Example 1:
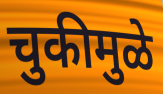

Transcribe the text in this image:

चुकीमुळे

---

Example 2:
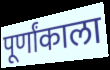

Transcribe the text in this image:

पूर्णांकाला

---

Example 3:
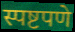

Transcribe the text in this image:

स्पष्टपणे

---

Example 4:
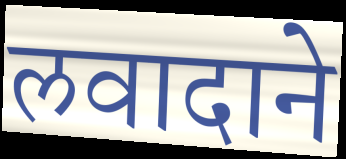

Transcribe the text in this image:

लवादाने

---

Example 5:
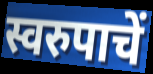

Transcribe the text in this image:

स्वरुपाचें